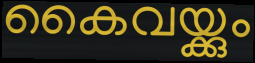
കൈവയ്ക്കും